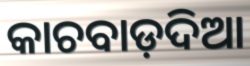
କାଚବାଡ଼ଦିଆ